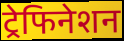
ट्रेफिनेशन